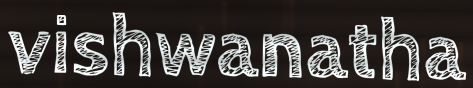
vishwanatha